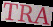
TRA